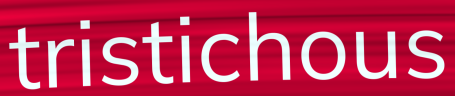
tristichous